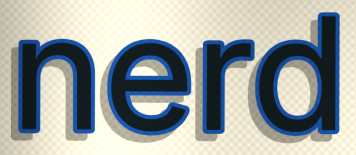
nerd